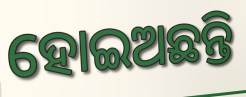
ହୋଇଅଛନ୍ତି